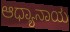
ಆಧ್ಯಾನಾಯ